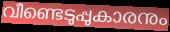
വീണ്ടെടുപ്പുകാരനും